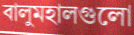
বালুমহালগুলো